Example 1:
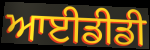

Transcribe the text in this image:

ਆਈਡੀਡੀ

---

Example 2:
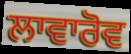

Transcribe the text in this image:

ਲਾਵਾਰੋਵ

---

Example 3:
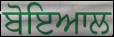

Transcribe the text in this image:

ਬੋਇਆਲ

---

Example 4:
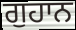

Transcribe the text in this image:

ਗੁਹਾਨ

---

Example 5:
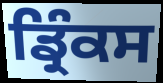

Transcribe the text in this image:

ਡ੍ਰਿੰਕਸ